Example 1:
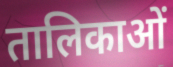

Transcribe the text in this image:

तालिकाओं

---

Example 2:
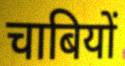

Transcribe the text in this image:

चाबियों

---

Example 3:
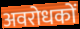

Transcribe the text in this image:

अवरोधकों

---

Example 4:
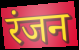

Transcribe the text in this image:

रंजन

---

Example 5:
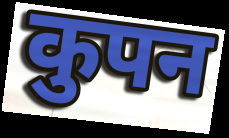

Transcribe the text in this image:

कुपन